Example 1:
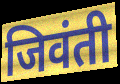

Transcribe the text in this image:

जिवंती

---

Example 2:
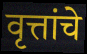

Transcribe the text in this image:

वृत्तांचे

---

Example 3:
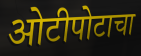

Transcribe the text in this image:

ओटीपोटाचा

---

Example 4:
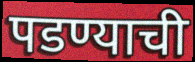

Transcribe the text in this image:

पडण्याची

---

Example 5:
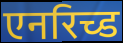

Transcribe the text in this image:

एनरिच्ड